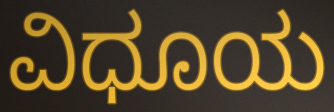
ವಿಧೂಯ